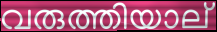
വരുത്തിയാല്